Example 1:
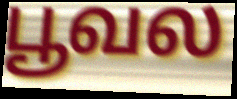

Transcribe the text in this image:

பூவல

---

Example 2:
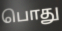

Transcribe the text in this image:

பொது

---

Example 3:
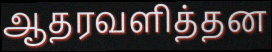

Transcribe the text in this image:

ஆதரவளித்தன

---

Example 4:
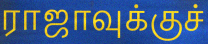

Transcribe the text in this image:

ராஜாவுக்குச்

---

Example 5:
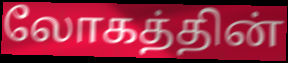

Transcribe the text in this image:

லோகத்தின்